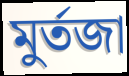
মুর্তজা